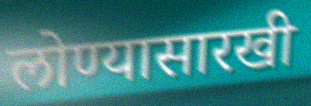
लोण्यासारखी